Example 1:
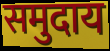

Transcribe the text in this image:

समुदाय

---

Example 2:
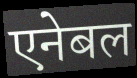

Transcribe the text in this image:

एनेबल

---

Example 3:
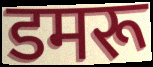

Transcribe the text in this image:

डमरू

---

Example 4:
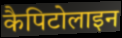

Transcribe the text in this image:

कैपिटोलाइन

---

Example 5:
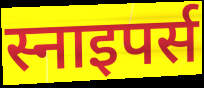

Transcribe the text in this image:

स्नाइपर्स